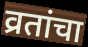
व्रतांचा